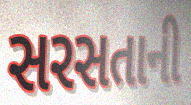
સરસતાની